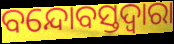
ବନ୍ଦୋବସ୍ତଦ୍ୱାରା